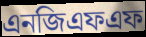
এনজিএফএফ